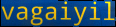
vagaiyil